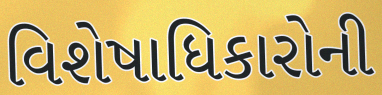
વિશેષાધિકારોની